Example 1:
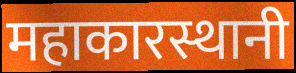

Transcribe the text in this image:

महाकारस्थानी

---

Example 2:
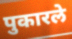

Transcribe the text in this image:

पुकारले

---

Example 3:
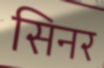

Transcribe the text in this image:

सिनर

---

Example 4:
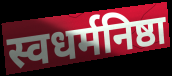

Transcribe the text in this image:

स्वधर्मनिष्ठा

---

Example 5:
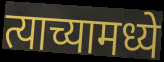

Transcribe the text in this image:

त्याच्यामध्ये